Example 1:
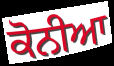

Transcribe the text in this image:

ਕੋਨੀਆ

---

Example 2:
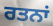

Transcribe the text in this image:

ਰਤਨਾਂ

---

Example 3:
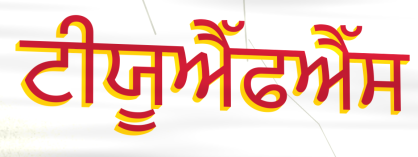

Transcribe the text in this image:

ਟੀਯੂਐੱਫਐੱਸ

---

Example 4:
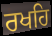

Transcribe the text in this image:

ਰਖਹਿ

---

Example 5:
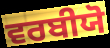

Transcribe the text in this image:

ਵਰਬੀਯੋ